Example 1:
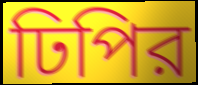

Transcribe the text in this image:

ঢিপির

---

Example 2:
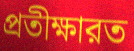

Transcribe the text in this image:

প্রতীক্ষারত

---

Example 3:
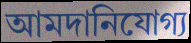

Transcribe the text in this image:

আমদানিযোগ্য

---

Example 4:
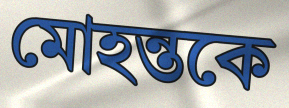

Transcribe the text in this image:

মোহন্তকে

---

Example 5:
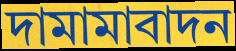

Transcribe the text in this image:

দামামাবাদন